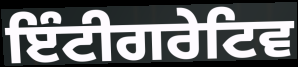
ਇੰਟੀਗਰੇਟਿਵ